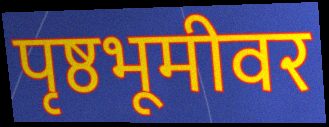
पृष्ठभूमीवर